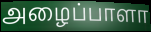
அழைப்பாளா